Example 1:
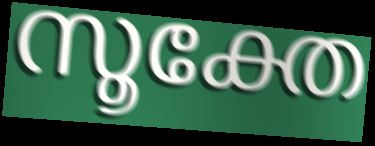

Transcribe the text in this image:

സൂക്തേ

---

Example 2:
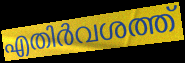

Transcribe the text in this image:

എതിർവശത്ത്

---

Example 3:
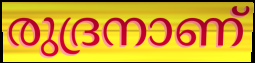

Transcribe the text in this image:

രുദ്രനാണ്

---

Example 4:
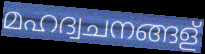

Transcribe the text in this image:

മഹദ്വചനങ്ങള്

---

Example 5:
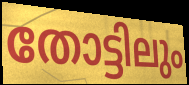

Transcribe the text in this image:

തോട്ടിലും